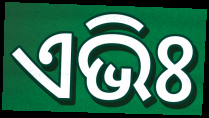
ଏଭିଃ